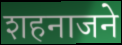
शहनाजने